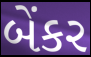
બેંકર